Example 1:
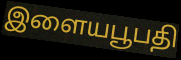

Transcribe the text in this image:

இளையபூபதி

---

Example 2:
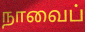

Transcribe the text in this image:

நாவைப்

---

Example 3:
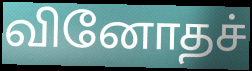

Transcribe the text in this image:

வினோதச்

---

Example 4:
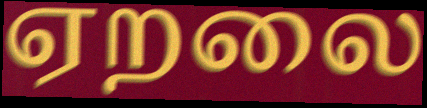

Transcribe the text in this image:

ஏறலை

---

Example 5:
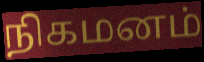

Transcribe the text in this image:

நிகமனம்